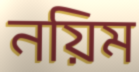
নয়িম